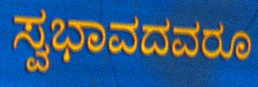
ಸ್ವಭಾವದವರೂ